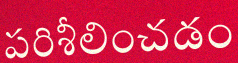
పరిశీలించడం